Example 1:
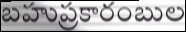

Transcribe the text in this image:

బహుప్రకారంబుల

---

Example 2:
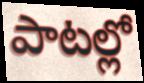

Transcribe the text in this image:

పాటల్లో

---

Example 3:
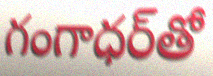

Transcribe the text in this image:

గంగాధర్‌తో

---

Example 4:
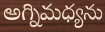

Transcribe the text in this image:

అగ్నిమధ్యను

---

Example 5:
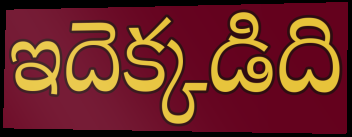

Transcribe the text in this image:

ఇదెక్కడిది